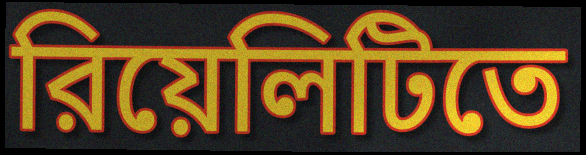
রিয়েলিটিতে